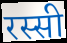
रस्सी